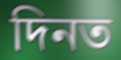
দিনত